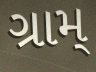
ગ્રામ્